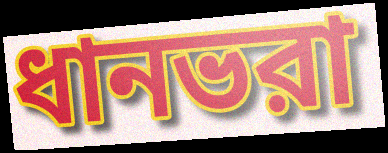
ধানভরা